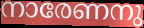
നാരേണനു